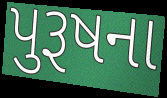
પુરૂષના